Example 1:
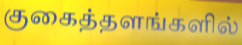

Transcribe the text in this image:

குகைத்தளங்களில்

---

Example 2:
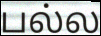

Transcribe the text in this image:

பல்ல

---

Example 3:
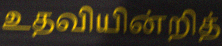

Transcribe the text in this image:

உதவியின்றித்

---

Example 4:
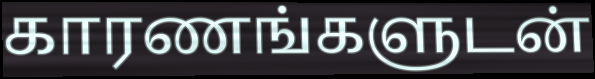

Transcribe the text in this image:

காரணங்களுடன்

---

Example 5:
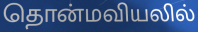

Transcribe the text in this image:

தொன்மவியலில்